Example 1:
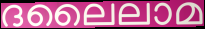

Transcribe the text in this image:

ദലൈലാമ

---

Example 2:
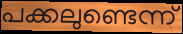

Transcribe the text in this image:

പക്കലുണ്ടെന്ന്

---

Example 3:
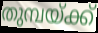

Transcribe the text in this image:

തുമ്പയ്ക്ക്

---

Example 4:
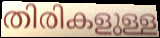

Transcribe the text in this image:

തിരികളുള്ള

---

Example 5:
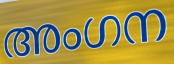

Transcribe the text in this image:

അംഗന